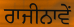
ਰਾਜੀਨਾਵੇਂ